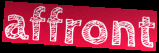
affront